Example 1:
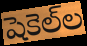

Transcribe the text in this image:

షెకెల్‌ల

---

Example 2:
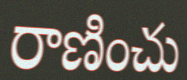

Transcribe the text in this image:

రాణించు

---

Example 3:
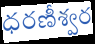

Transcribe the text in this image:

ధరణీశ్వర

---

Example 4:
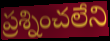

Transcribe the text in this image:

ప్రశ్నించలేని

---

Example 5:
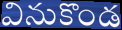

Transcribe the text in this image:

వినుకొండ